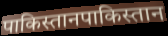
पाकिस्तानपाकिस्तान